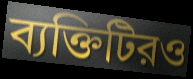
ব্যক্তিটিরও